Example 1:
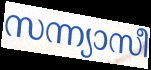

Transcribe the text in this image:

സന്ന്യാസീ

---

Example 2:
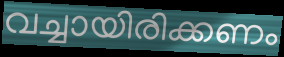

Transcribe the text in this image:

വച്ചായിരിക്കണം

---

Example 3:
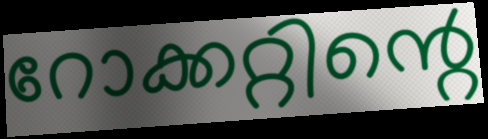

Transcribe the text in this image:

റോക്കറ്റിന്റെ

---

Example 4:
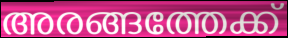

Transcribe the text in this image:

അരങ്ങത്തേക്ക്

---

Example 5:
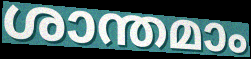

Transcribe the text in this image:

ശാന്തമാം